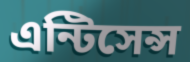
এন্টিসেন্স